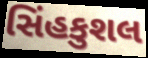
સિંહકુશલ